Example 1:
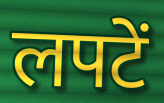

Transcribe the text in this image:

लपटें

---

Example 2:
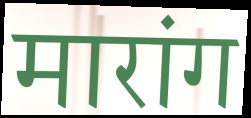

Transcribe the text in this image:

मारांग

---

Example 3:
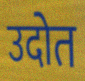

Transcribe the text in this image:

उदोत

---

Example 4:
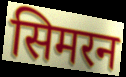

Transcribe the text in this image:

सिमरन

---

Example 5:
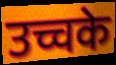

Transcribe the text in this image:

उच्चके